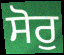
ਸੋਰੁ